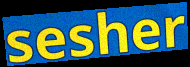
sesher